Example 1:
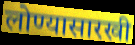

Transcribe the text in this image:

लोण्यासारखी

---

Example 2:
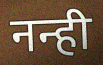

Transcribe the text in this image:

नन्ही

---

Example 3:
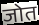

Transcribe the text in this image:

जोत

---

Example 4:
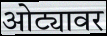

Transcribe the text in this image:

ओट्यावर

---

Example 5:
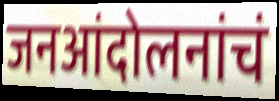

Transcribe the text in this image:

जनआंदोलनांचं